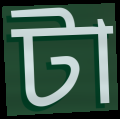
টা